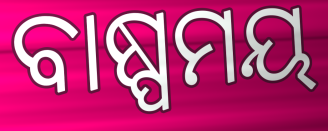
ବାଷ୍ପମୟ